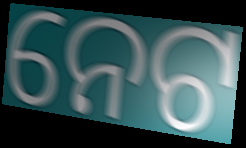
ନେଟ